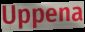
Uppena